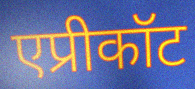
एप्रीकॉट